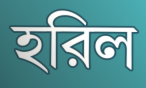
হরিল